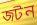
জটন